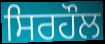
ਸਿਰਹੌਲ